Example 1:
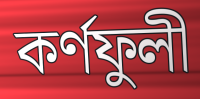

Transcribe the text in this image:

কর্ণফুলী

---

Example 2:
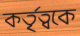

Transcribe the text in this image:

কর্তৃত্বকে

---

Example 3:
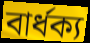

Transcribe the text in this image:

বার্ধক্য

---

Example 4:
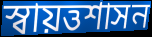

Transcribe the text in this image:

স্বায়ত্তশাসন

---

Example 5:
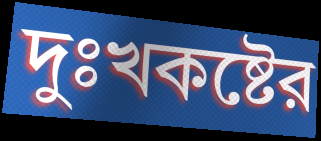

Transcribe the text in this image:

দুঃখকষ্টের